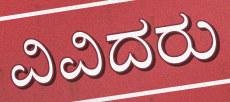
ವಿವಿದರು